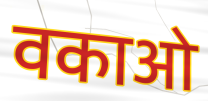
वकाओ